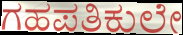
ಗಹಪತಿಕುಲೇ